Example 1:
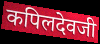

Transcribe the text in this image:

कपिलदेवजी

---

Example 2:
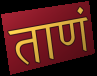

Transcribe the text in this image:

ताणं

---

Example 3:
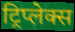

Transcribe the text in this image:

ट्रिप्लेक्स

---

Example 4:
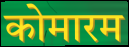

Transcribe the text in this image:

कोमारम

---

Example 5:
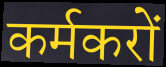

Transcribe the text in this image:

कर्मकरों